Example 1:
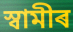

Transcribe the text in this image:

স্বামীৰ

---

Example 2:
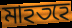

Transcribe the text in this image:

মাহতহে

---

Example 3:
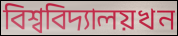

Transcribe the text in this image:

বিশ্ববিদ্যালয়খন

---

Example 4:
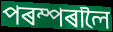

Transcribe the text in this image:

পৰম্পৰালৈ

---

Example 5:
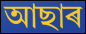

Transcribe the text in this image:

আছাৰ